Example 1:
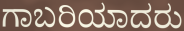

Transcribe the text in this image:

ಗಾಬರಿಯಾದರು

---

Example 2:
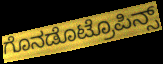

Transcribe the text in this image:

ಗೊನಡೊಟ್ರೊಪಿನ್ಸ್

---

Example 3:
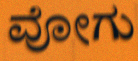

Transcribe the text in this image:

ವೋಗು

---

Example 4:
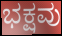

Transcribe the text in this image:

ಭಕ್ಷವು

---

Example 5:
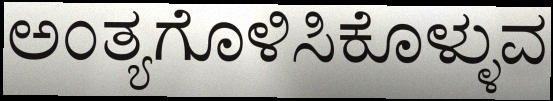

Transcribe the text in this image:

ಅಂತ್ಯಗೊಳಿಸಿಕೊಳ್ಳುವ